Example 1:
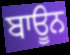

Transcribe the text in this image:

ਬਾਊਨ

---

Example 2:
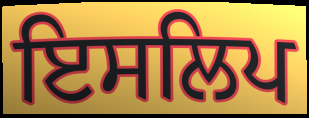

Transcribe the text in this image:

ਇਸਲਿਪ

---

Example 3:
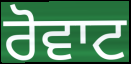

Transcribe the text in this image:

ਰੋਵਾਟ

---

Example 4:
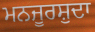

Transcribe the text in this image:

ਮਨਜੂਰਸ਼ੁਦਾ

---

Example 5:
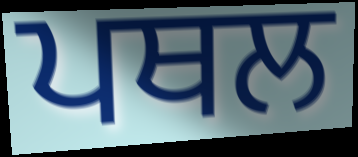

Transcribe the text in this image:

ਪਥਲ